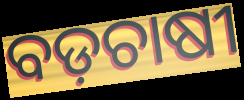
ବଡ଼ଚାଷୀ